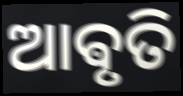
ଆଵୃତି